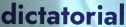
dictatorial